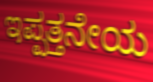
ಇಪ್ಪತ್ತನೇಯ